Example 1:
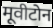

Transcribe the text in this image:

मूवीटोन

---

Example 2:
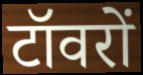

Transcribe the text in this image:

टॉवरों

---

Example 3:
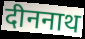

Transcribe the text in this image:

दीननाथ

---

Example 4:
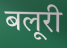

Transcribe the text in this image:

बलूरी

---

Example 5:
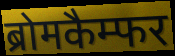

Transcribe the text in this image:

ब्रोमकैम्फर